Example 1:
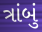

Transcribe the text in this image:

ત્રાંબું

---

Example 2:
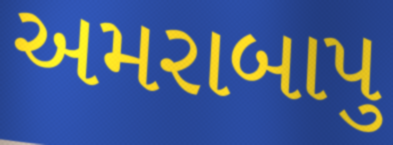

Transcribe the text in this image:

અમરાબાપુ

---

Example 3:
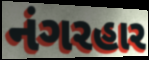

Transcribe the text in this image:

નંગરહાર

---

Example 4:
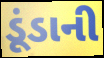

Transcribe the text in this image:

ડૂંડાની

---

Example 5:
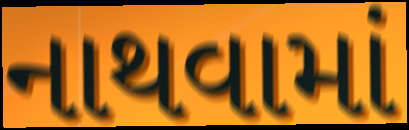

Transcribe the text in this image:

નાથવામાં